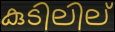
കുടിലില്